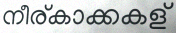
നീര്കാക്കകള്